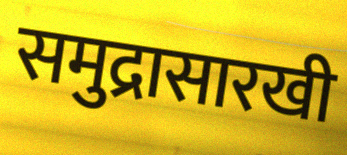
समुद्रासारखी